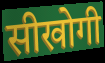
सीखोगी